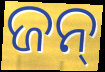
ଜନ୍